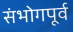
संभोगपूर्व